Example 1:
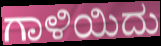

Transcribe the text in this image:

ಗಾಳಿಯಿದು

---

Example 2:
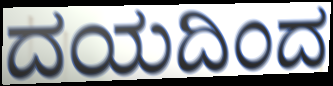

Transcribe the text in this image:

ದಯದಿಂದ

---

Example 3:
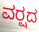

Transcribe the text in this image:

ವರ್‍ಷದ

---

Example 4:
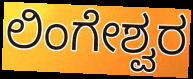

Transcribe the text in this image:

ಲಿಂಗೇಶ್ವರ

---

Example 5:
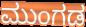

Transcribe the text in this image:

ಮುಂಗಡ